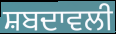
ਸ਼ਬਦਾਵਲੀ